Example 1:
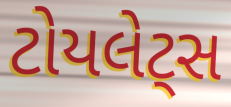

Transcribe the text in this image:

ટોયલેટ્સ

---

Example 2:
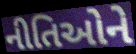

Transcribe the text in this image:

નીતિઓને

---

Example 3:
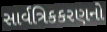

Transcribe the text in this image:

સાર્વત્રિકકરણનો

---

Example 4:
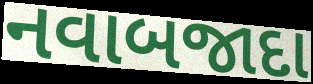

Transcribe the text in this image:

નવાબજાદા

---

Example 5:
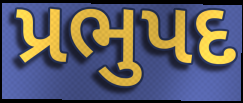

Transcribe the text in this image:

પ્રભુપદ